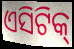
ଏସିଟିକ୍